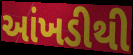
આંખડીથી